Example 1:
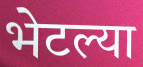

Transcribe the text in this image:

भेटल्या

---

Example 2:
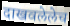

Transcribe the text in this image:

दाखवलेलेच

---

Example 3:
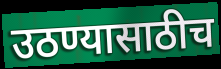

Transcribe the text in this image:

उठण्यासाठीच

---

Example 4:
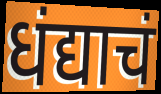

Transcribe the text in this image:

धंद्याचं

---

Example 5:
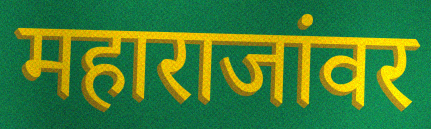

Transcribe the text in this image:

महाराजांवर